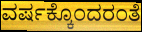
ವರ್ಷಕ್ಕೊಂದರಂತೆ